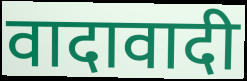
वादावादी